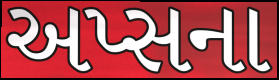
અપ્સના